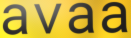
avaa